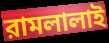
রামলালাই